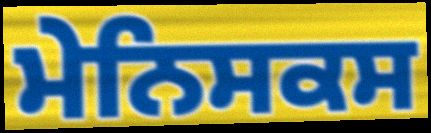
ਮੇਨਿਸਕਸ